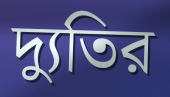
দ্যুতির